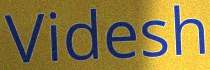
Videsh